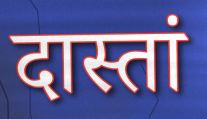
दास्तां